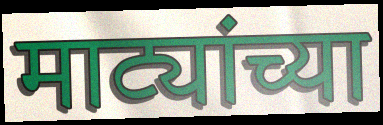
माट्यांच्या